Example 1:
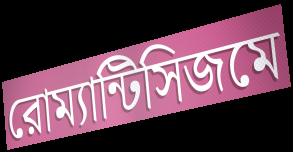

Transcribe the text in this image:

রোম্যান্টিসিজমে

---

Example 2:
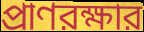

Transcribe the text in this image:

প্রাণরক্ষার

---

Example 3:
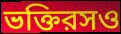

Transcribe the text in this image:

ভক্তিরসও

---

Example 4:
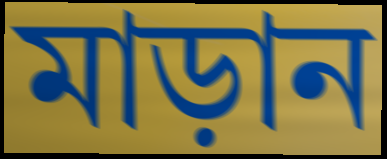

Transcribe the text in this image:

মাড়ান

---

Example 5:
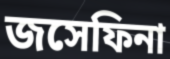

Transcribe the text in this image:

জসেফিনা